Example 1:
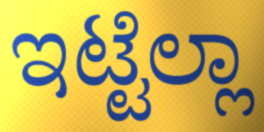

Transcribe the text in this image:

ಇಟ್ಟೆಲ್ಲಾ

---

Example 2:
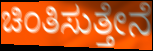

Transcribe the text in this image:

ಚಿಂತಿಸುತ್ತೇನೆ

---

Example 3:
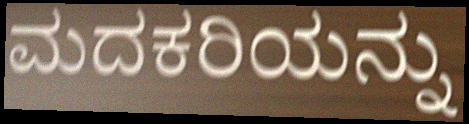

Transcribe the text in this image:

ಮದಕರಿಯನ್ನು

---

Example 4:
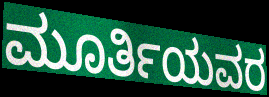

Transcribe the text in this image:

ಮೂರ್ತಿಯವರ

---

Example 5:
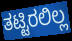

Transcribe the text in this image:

ತಟ್ಟಿರಲಿಲ್ಲ